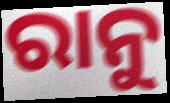
ରାନୁ